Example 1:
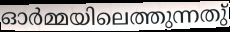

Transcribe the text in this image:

ഓർമ്മയിലെത്തുന്നതു്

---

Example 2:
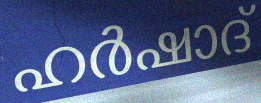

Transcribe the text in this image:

ഹർഷാദ്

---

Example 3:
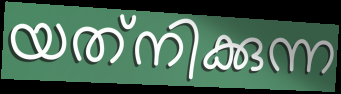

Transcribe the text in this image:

യത്‌നിക്കുന്ന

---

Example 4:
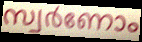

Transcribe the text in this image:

സ്വർണോം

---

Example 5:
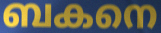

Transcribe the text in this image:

ബകനെ